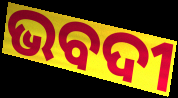
ଭବଦୀ